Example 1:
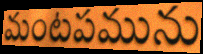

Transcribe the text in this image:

మంటపమును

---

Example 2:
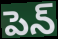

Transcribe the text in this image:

పెన్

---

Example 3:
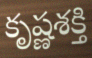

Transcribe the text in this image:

కృష్ణశక్తి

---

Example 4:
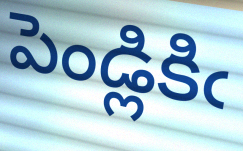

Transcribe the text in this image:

పెండ్లికిఁ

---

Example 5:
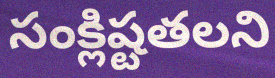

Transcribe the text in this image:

సంక్లిష్టతలని